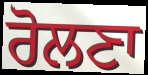
ਰੋਲਣਾ